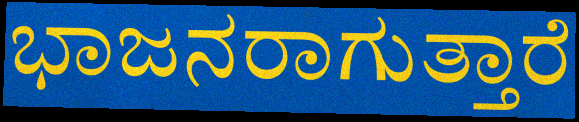
ಭಾಜನರಾಗುತ್ತಾರೆ